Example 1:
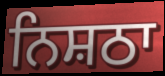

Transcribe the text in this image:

ਨਿਸ਼ਠਾ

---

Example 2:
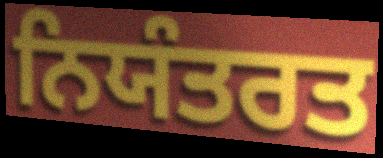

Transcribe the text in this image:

ਨਿਯੰਤਰਤ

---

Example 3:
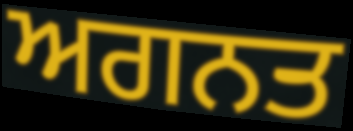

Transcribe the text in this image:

ਅਗਨਤ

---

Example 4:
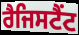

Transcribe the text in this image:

ਰੈਜਿਸਟੈਂਟ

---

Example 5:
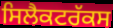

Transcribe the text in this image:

ਸਿਲੈਕਟਰੱਕਸ